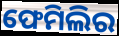
ଫେମିଲିର